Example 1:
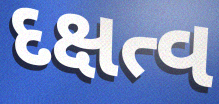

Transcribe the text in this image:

દક્ષત્વ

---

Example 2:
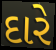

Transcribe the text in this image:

દારે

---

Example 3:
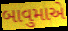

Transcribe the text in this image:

બાવુમાએ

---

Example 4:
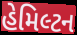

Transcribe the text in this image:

હેમિલ્ટન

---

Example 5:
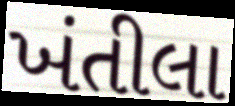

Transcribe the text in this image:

ખંતીલા